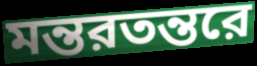
মন্তরতন্তরে